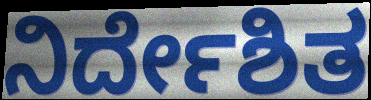
ನಿರ್ದೇಶಿತ